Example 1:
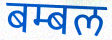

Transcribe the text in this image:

बम्बल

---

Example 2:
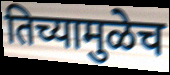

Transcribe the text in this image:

तिच्यामुळेच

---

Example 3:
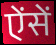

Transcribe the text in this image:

ऐंसें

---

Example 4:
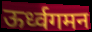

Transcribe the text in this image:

ऊर्ध्वगमन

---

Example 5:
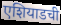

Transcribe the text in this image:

एशियाडची